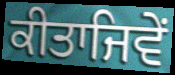
ਕੀਤਾਜਿਵੇਂ